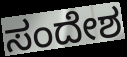
ಸಂದೇಶ